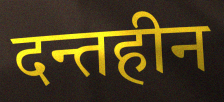
दन्तहीन